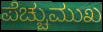
ಪೆಚ್ಚುಮುಖ